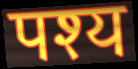
पश्य